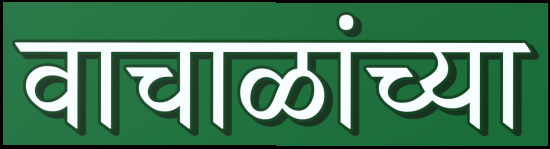
वाचाळांच्या